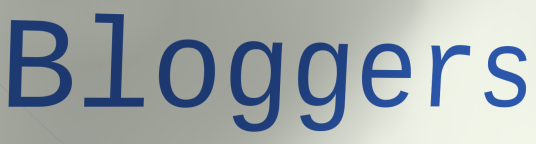
Bloggers